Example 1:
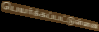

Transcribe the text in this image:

பெயர்க்கப்பட்டுள்ளன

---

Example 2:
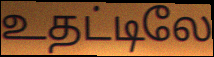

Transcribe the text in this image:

உதட்டிலே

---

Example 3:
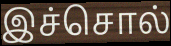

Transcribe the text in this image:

இச்சொல்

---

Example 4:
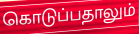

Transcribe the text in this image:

கொடுப்பதாலும்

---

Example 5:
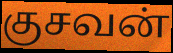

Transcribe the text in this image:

குசவன்